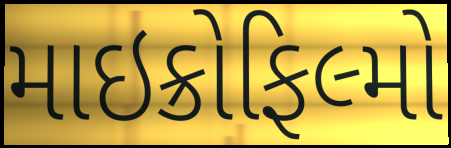
માઇક્રોફિલ્મો